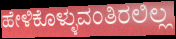
ಹೇಳಿಕೊಳ್ಳುವಂತಿರಲಿಲ್ಲ